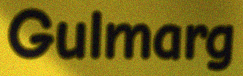
Gulmarg